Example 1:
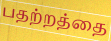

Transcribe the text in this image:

பதற்றத்தை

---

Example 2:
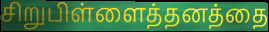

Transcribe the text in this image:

சிறுபிள்ளைத்தனத்தை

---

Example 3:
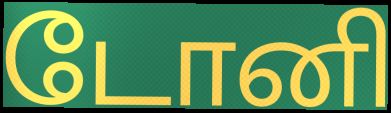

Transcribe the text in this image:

டோனி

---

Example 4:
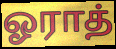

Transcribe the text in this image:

ஓராத்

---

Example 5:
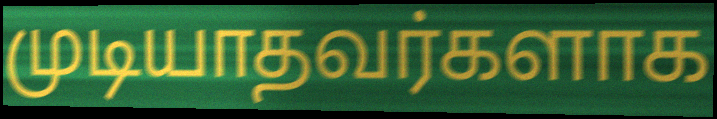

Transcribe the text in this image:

முடியாதவர்களாக